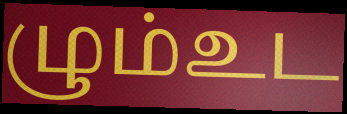
ழும்உட